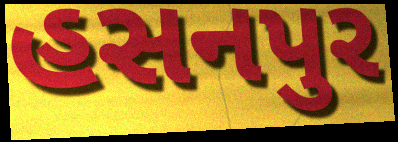
હસનપુર